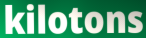
kilotons